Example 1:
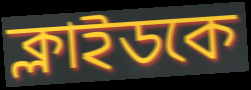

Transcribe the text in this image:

ক্লাইডকে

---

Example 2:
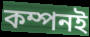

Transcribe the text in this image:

কম্পনই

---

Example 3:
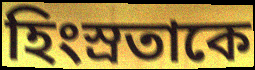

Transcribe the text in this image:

হিংস্রতাকে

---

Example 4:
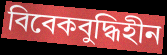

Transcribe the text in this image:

বিবেকবুদ্ধিহীন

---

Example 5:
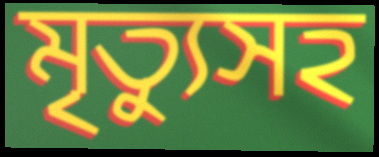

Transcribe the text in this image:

মৃত্যুসহ